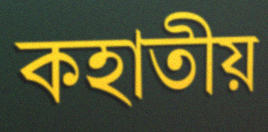
কহাতীয়